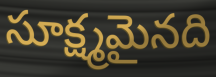
సూక్ష్మమైనది